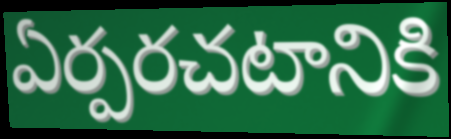
ఏర్పరచటానికి